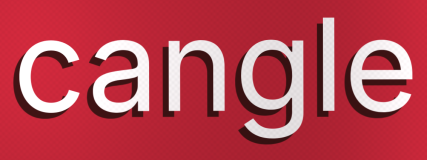
cangle